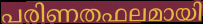
പരിണതഫലമായി